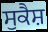
ਸੁਕੈਸ਼